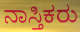
ನಾಸ್ತಿಕರು